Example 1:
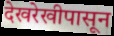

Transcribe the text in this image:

देखरेखीपासून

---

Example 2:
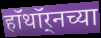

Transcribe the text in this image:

हॉथॉर्नच्या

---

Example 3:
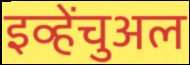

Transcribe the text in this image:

इव्हेंचुअल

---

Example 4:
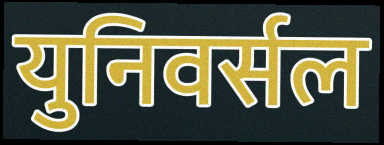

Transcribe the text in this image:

युनिवर्सल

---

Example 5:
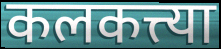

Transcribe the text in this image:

कलकत्त्या